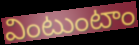
వింటుంటాం